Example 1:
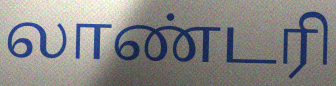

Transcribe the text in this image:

லாண்டரி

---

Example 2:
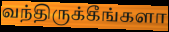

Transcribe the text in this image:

வந்திருக்கீங்களா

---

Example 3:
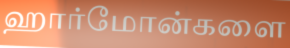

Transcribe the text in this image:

ஹார்மோன்களை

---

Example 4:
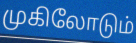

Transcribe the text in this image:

முகிலோடும்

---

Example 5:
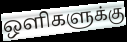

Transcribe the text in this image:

ஒளிகளுக்கு